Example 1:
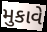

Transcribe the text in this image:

મુકાવે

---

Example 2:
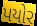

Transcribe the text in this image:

પયોર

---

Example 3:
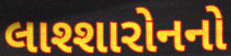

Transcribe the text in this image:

લાશ્શારોનનો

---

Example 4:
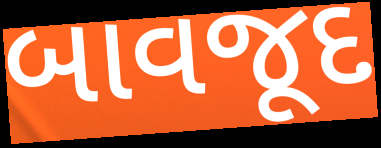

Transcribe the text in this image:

બાવજૂદ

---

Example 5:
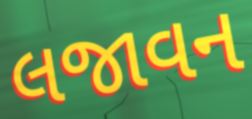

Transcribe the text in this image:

લજાવન